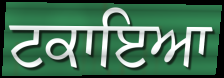
ਟਕਾਇਆ